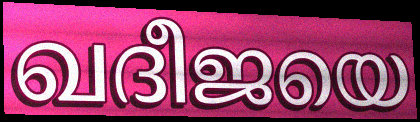
ഖദീജയെ